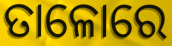
ତାଳୋରେ